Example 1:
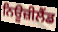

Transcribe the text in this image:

ਨਿਊਜ਼ੀਲੈੰਡ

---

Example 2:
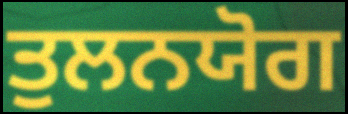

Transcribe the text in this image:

ਤੁਲਨਯੋਗ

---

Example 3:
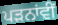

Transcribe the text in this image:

ਪੜਨਾਂਵੀਂ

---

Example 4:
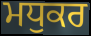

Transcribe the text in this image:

ਮਧੁਕਰ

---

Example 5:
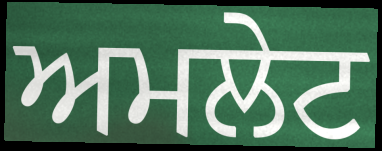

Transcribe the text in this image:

ਅਮਲੇਟ